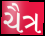
ચૈત્ર